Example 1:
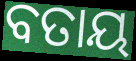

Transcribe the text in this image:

ବତାୟ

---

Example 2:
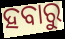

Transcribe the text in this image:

ହବାରୁ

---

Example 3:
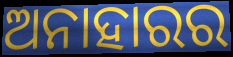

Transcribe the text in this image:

ଅନାହାରର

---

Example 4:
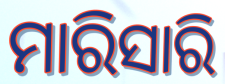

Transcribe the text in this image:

ମାରିସାରି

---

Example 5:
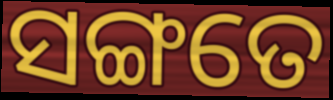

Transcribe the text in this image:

ସଙ୍ଗତେ